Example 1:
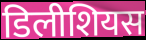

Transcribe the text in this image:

डिलीशियस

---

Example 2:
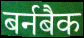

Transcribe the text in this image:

बर्नबैक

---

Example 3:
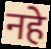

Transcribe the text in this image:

नहे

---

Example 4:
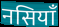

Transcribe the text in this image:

नसियाँ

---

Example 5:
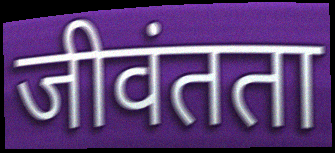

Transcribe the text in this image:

जीवंतता